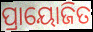
ପ୍ରାୟୋଜିତ